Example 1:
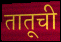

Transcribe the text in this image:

तातूची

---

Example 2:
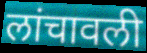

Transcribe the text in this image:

लांचावली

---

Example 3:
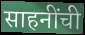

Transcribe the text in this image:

साहनींची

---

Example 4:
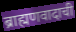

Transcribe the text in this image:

ब्राह्मणवादाची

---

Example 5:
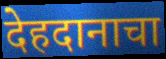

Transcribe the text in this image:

देहदानाचा